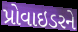
પ્રોવાઇડરને